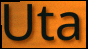
Uta